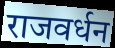
राजवर्धन